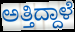
ಅತ್ತಿದ್ದಾಳೆ